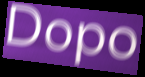
Dopo